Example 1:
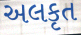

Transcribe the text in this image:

અલકૃત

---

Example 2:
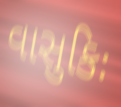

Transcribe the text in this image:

વાસુકિઃ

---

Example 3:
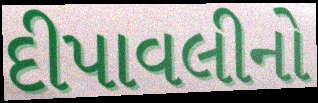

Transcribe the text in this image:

દીપાવલીનો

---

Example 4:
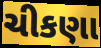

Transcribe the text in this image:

ચીકણા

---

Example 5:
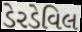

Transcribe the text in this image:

ડેરડેવિલ